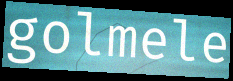
golmele